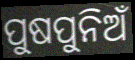
ପୁଷପୁନିଅଁ